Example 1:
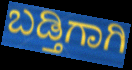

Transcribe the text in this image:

ಬಡ್ತಿಗಾಗಿ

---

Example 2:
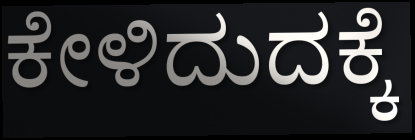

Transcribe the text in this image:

ಕೇಳಿದುದಕ್ಕೆ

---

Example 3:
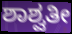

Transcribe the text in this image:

ಶಾಶ್ವತೀ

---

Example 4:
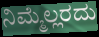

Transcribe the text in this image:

ನಿಮ್ಮೆಲ್ಲರದು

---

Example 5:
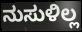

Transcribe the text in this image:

ನುಸುಳಿಲ್ಲ